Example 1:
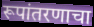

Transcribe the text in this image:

रूपांतरणाचा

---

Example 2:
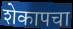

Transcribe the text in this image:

शेकापचा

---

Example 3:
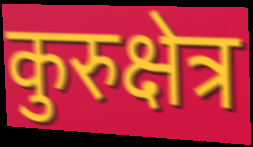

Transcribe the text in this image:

कुरुक्षेत्र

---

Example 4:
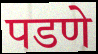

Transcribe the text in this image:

पडणे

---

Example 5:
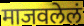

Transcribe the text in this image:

माजवलेलं